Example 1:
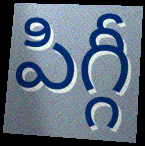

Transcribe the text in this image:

పిగ్గీ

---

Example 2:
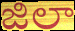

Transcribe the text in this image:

జిలా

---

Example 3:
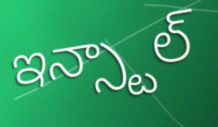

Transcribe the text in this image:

ఇన్స్టాల్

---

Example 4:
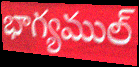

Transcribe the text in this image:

భాగ్యముల్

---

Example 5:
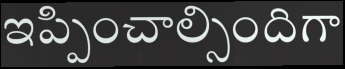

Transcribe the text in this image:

ఇప్పించాల్సిందిగా